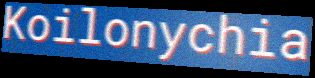
Koilonychia